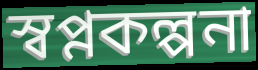
স্বপ্নকল্পনা